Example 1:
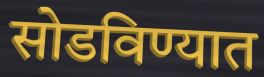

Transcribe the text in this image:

सोडविण्यात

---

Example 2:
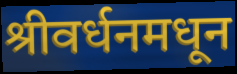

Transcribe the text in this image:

श्रीवर्धनमधून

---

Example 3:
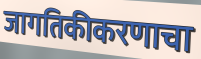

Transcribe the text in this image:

जागतिकीकरणाचा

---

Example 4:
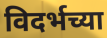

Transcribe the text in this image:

विदर्भच्या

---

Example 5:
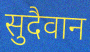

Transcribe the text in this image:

सुदैवान